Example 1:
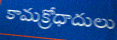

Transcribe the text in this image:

కామక్రోధాదులు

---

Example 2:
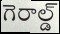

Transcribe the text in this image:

గెరాల్డ్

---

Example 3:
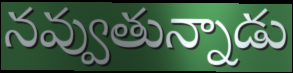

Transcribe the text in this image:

నవ్వుతున్నాడు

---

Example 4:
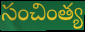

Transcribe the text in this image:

సంచింత్య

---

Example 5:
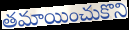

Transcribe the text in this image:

తమాయించుకొని